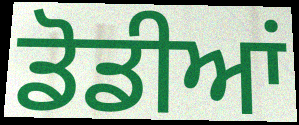
ਡੋਡੀਆਂ